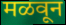
मळवून